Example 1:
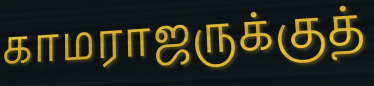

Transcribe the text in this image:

காமராஜருக்குத்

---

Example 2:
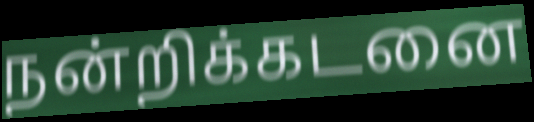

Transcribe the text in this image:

நன்றிக்கடனை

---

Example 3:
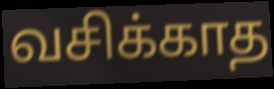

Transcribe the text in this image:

வசிக்காத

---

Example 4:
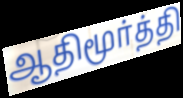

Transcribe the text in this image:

ஆதிமூர்த்தி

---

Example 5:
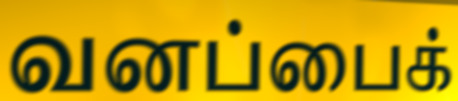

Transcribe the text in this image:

வனப்பைக்